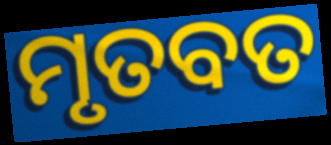
ମୃତବତ